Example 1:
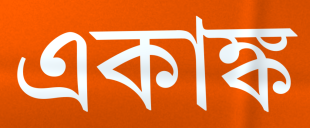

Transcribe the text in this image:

একাঙ্ক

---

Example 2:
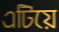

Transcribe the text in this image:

এটিয়ে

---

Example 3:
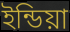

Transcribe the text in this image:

ইন্ডিয়া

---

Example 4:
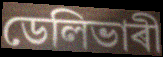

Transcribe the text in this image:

ডেলিভাৰী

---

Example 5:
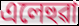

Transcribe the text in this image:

এলেহুৱা